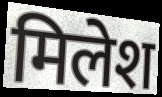
मिलेश